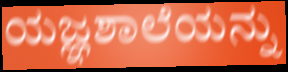
ಯಜ್ಞಶಾಲೆಯನ್ನು